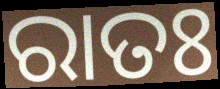
ରାତଃ